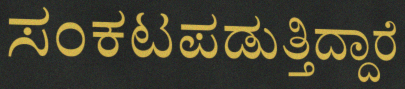
ಸಂಕಟಪಡುತ್ತಿದ್ದಾರೆ